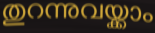
തുറന്നുവയ്ക്കാം